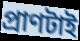
প্রাণটাই